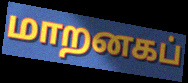
மாறனகப்